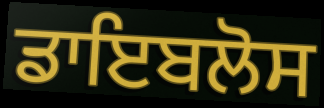
ਡਾਇਬਲੋਸ